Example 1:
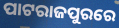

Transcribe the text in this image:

ପାଟରାଜପୁରରେ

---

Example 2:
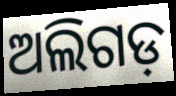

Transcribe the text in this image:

ଅଲିଗଡ଼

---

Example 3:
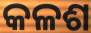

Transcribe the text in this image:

କଳଶ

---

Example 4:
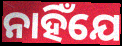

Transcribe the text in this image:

ନାହିଁଯେ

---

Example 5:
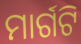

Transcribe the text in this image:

ମାର୍ଗଟି